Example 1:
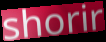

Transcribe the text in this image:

shorir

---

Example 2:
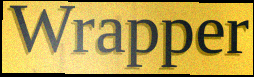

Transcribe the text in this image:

Wrapper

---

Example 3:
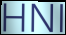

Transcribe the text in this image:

HNI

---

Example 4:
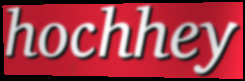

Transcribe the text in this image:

hochhey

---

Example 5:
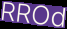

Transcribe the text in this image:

RROd